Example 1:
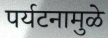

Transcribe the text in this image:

पर्यटनामुळे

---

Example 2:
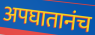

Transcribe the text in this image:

अपघातानंच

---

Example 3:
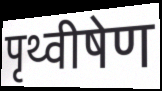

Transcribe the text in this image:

पृथ्वीषेण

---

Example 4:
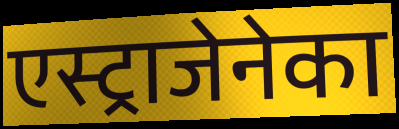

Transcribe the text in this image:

एस्ट्राजेनेका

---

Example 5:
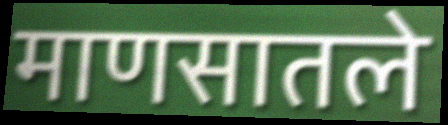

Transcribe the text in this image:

माणसातले